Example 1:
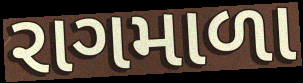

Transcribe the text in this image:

રાગમાળા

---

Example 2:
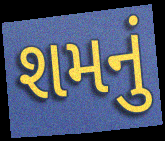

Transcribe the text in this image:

શમનું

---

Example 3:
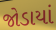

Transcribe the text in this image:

જોડાયાં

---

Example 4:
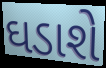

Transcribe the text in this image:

ઘડાશે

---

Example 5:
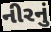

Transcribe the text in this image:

નીરનું